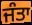
ਜੰਤਾ